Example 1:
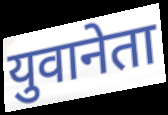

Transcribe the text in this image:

युवानेता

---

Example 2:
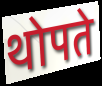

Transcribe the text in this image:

थोपते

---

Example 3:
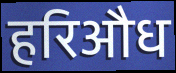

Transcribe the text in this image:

हरिऔध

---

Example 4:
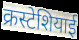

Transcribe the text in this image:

क्रस्टेशियाई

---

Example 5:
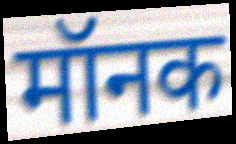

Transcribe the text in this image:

मॉनक